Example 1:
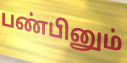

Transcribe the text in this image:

பண்பினும்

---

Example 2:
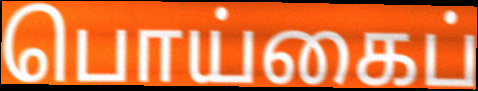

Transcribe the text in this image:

பொய்கைப்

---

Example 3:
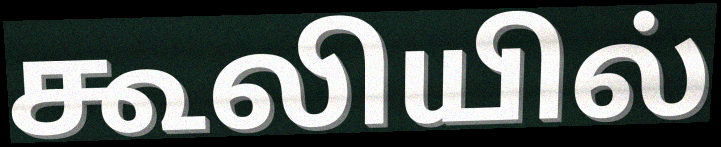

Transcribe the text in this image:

கூலியில்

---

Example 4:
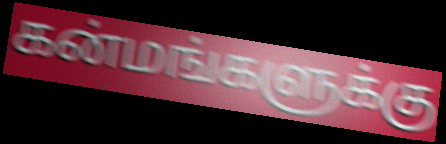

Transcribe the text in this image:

கன்மங்களுக்கு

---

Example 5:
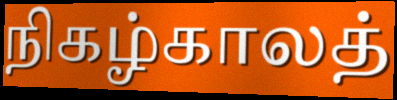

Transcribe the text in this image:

நிகழ்காலத்